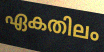
ഏകതിലം